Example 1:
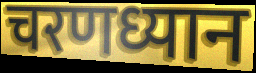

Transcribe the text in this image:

चरणध्यान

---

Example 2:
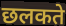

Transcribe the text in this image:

छलकते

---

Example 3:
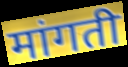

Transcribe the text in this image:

मांगती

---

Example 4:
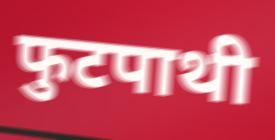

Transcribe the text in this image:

फुटपाथी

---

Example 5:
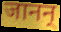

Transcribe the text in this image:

जानन्